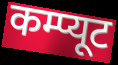
कम्प्यूट